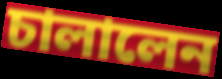
চালালেন